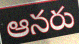
ఆనరు